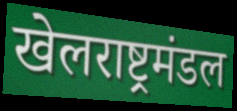
खेलराष्ट्रमंडल